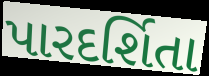
પારદર્શિતા